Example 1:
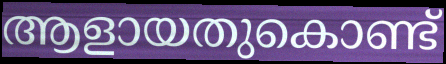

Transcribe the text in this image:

ആളായതുകൊണ്ട്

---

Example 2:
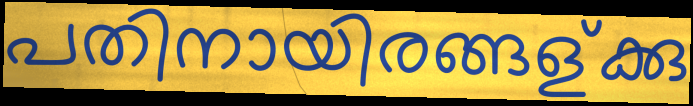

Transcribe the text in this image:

പതിനായിരങ്ങള്ക്കു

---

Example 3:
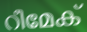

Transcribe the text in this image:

റീമേക്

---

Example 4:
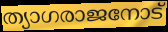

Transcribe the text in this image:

ത്യാഗരാജനോട്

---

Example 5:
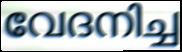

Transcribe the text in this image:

വേദനിച്ച